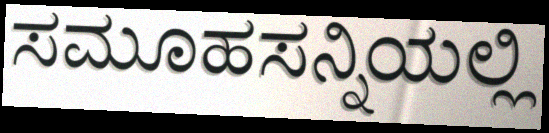
ಸಮೂಹಸನ್ನಿಯಲ್ಲಿ